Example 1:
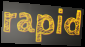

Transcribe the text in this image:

rapid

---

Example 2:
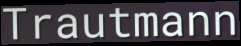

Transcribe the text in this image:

Trautmann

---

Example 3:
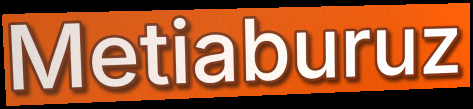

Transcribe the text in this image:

Metiaburuz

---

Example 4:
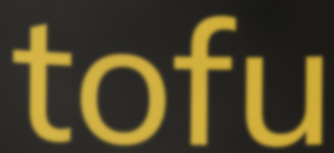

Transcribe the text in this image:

tofu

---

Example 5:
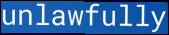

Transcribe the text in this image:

unlawfully